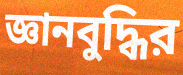
জ্ঞানবুদ্ধির